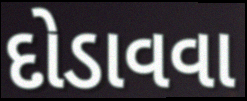
દોડાવવા